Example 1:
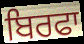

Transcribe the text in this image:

ਬਿਰਫਾ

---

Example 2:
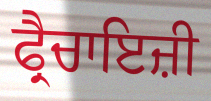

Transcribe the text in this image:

ਫ੍ਰੈਚਾਇਜ਼ੀ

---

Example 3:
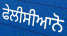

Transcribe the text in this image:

ਫੇਲੀਸੀਆਨੋ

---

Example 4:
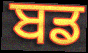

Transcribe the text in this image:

ਬਡ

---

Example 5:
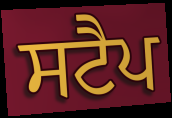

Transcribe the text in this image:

ਸਟੈਪ